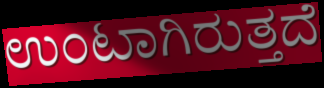
ಉಂಟಾಗಿರುತ್ತದೆ